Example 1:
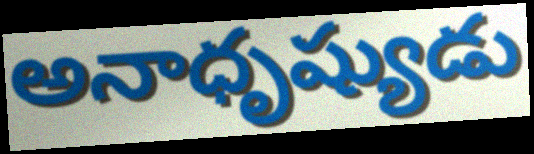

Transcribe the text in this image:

అనాధృష్యుడు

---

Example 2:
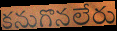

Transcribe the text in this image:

కనుగొనలేరు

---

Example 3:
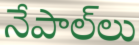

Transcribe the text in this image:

నేపాల్‌లు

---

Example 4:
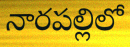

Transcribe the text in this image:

నారపల్లిలో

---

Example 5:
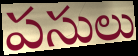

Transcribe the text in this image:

పసులు